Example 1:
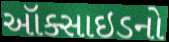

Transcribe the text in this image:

ઑક્સાઇડનો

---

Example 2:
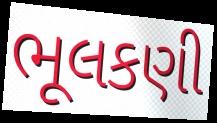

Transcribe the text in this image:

ભૂલકણી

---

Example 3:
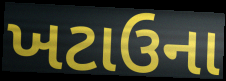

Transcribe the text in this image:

ખટાઉના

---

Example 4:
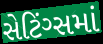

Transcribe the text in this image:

સેટિંગ્સમાં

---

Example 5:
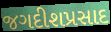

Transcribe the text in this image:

જગદીશપ્રસાદ